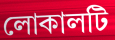
লোকালটি